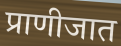
प्राणीजात